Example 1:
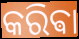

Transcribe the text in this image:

କରିଵା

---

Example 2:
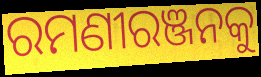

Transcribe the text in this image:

ରମଣୀରଞ୍ଜନକୁ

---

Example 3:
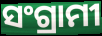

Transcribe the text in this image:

ସଂଗ୍ରାମୀ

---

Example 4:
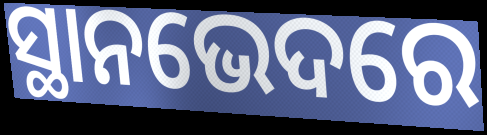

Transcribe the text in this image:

ସ୍ଥାନଭେଦରେ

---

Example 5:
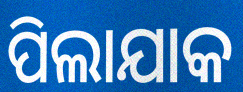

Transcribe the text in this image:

ପିଲାଯାକ